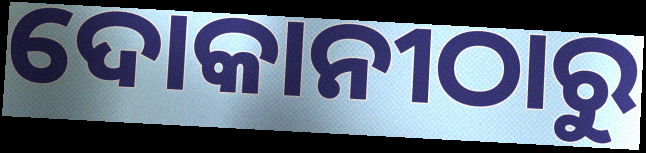
ଦୋକାନୀଠାରୁ